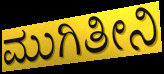
ಮುಗಿತೀನಿ